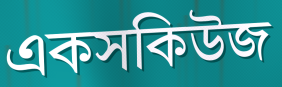
একসকিউজ